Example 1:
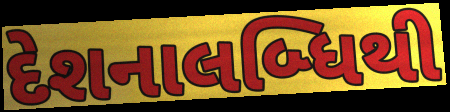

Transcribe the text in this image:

દેશનાલબ્ધિથી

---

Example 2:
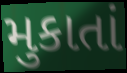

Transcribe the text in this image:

મુકાતાં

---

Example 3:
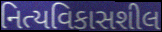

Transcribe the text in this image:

નિત્યવિકાસશીલ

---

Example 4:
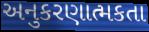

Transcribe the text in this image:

અનુકરણાત્મકતા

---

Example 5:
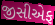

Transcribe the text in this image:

જીસીએફ